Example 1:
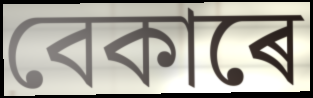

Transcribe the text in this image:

বেকাৰে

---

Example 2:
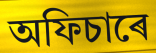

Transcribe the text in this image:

অফিচাৰে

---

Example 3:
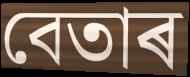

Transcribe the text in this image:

বেতাৰ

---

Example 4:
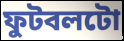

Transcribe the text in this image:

ফুটবলটো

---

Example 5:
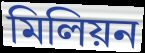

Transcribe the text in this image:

মিলিয়ন